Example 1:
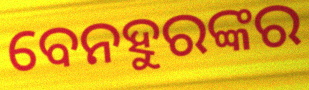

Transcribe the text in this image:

ବେନହୁରଙ୍କର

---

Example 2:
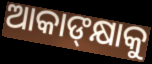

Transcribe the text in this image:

ଆକାଙ୍‍କ୍ଷାକୁ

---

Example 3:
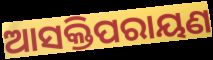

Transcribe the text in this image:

ଆସକ୍ତିପରାୟଣ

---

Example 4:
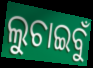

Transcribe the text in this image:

ଲୁଚାଇବୁଁ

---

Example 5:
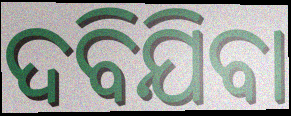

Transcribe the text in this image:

ଦବିଯିବା